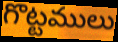
గొట్టములు